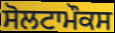
ਸੋਲਟਾਮੌਕਸ